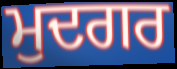
ਮੁਦਗਰ